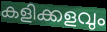
കളിക്കളവും